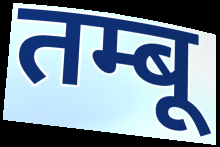
तम्बू